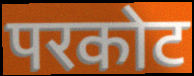
परकोट